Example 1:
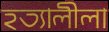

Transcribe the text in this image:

হত্যালীলা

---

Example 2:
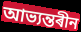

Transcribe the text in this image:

আভ্যন্তৰীন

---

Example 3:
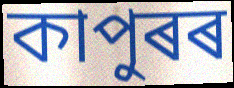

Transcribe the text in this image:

কাপুৰৰ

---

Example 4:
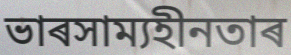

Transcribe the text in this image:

ভাৰসাম্যহীনতাৰ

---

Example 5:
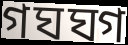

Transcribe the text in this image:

গঘঘগ